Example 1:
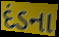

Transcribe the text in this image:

દંડના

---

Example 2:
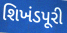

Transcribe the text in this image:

શિખંડપૂરી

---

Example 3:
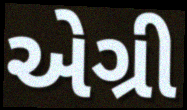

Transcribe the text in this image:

એગ્રી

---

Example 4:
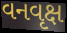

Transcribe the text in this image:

વનવૃક્ષ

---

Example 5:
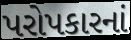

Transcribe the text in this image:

પરોપકારનાં